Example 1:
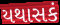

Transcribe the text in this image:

યથાસકં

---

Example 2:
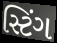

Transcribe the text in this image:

સ્ટિંગ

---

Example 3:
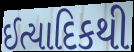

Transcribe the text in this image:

ઈત્યાદિકથી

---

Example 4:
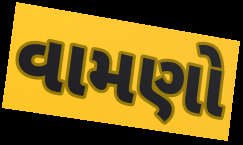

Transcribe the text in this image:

વામણો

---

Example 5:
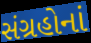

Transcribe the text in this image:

સંગ્રહોનાં